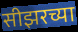
सीझरच्या